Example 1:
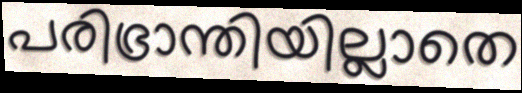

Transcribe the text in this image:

പരിഭ്രാന്തിയില്ലാതെ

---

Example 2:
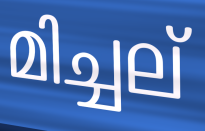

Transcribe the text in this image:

മിച്ചല്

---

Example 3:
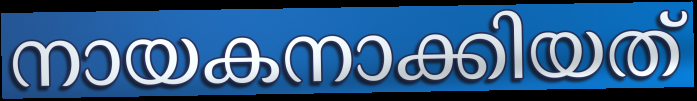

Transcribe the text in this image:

നായകനാക്കിയത്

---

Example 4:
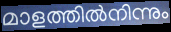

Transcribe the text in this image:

മാളത്തിൽനിന്നും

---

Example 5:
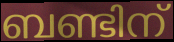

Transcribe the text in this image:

ബണ്ടിന്